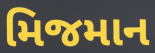
મિજમાન